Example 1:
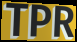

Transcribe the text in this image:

TPR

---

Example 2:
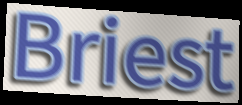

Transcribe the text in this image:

Briest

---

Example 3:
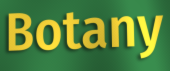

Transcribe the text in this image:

Botany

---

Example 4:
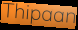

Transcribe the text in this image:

Thipaan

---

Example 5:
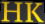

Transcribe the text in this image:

HK